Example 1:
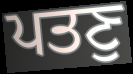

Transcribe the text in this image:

ਪਤਣੁ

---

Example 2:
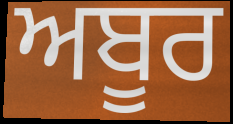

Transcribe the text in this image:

ਅਬੂਰ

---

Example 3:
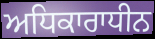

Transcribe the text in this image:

ਅਧਿਕਾਰਾਧੀਨ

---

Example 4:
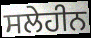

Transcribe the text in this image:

ਸਲੇਹੀਨ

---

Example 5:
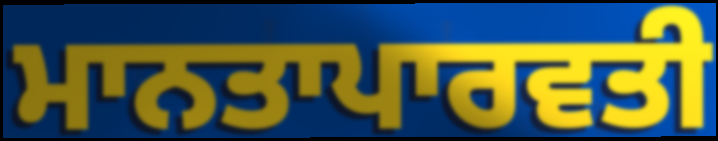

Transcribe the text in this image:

ਮਾਨਤਾਪਾਰਵਤੀ